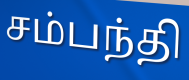
சம்பந்தி